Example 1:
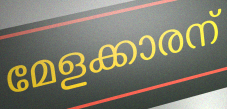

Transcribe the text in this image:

മേളക്കാരന്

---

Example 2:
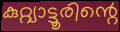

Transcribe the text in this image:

കുറ്റ്യാട്ടൂരിന്റെ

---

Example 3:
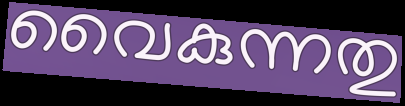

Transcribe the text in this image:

വൈകുന്നതു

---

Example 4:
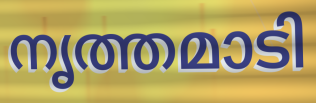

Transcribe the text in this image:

നൃത്തമാടി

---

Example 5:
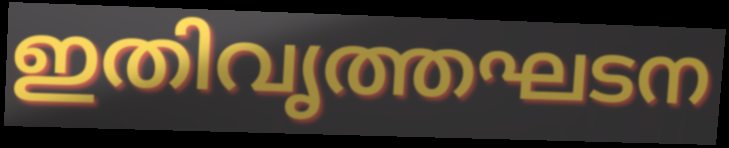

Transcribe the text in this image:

ഇതിവൃത്തഘടന